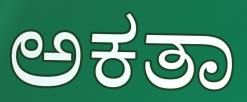
ಅಕತಾ